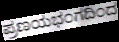
ಪ್ರಣಯಭಂಗದಿಂದ